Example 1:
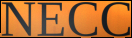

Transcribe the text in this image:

NECC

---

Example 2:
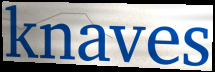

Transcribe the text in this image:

knaves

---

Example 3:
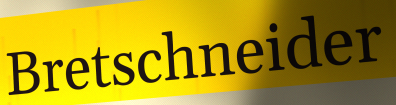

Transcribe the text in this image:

Bretschneider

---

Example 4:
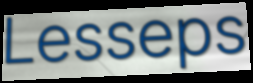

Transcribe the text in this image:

Lesseps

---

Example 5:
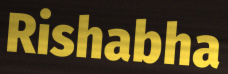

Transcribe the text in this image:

Rishabha